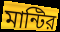
মান্টির